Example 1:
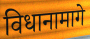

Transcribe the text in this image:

विधानामागे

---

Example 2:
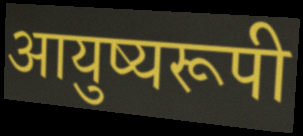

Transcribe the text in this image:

आयुष्यरूपी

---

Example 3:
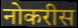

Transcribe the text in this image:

नोकरीस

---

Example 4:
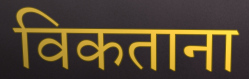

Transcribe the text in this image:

विकताना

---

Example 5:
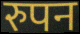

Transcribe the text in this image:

रुपन